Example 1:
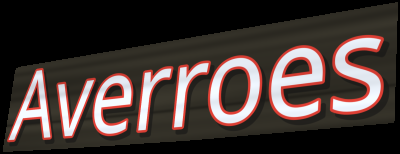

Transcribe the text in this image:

Averroes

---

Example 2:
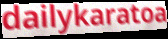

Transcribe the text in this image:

dailykaratoa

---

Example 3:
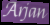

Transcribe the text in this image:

Arjan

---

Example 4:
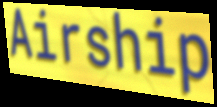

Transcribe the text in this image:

Airship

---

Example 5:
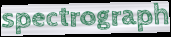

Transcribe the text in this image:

spectrograph